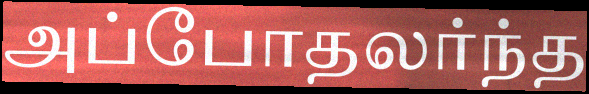
அப்போதலர்ந்த